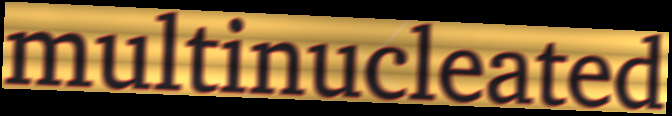
multinucleated